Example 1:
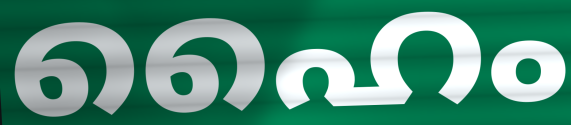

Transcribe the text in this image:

ഹൈം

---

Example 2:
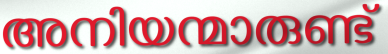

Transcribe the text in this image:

അനിയന്മാരുണ്ട്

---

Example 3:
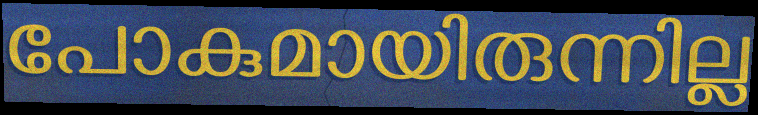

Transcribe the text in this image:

പോകുമായിരുന്നില്ല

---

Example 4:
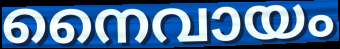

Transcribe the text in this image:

നൈവായം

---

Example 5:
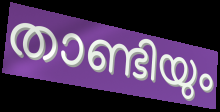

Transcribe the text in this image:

താണ്ടിയും